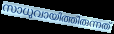
സാധുവായിത്തീരുന്നത്